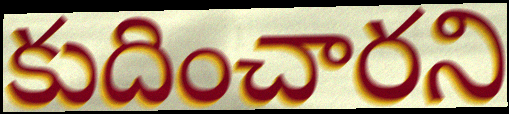
కుదించారని